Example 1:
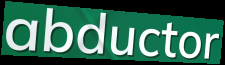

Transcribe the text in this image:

abductor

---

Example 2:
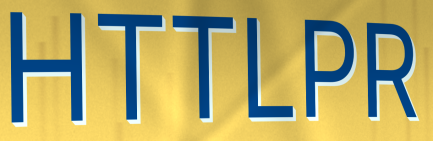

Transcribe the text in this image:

HTTLPR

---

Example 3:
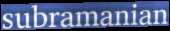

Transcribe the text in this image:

subramanian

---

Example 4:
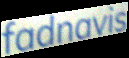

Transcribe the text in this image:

fadnavis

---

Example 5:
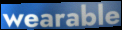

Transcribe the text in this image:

wearable